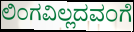
ಲಿಂಗವಿಲ್ಲದವಂಗೆ